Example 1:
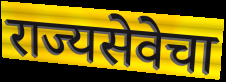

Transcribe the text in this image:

राज्यसेवेचा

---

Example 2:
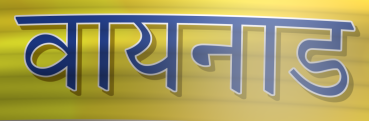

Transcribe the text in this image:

वायनाड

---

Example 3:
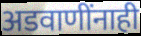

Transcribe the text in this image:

अडवाणींनाही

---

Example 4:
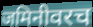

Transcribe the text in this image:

जमिनीवरच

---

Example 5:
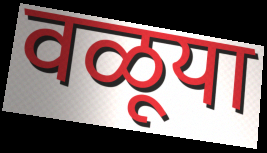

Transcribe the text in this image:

वळूया